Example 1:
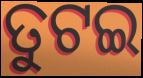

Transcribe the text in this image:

ତୁଟଇ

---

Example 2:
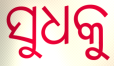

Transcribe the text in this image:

ସୁଧକୁ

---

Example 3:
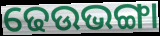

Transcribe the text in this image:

ଢେଉଭଙ୍ଗା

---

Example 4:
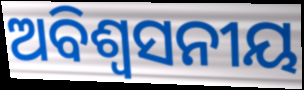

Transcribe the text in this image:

ଅବିଶ୍ବସନୀୟ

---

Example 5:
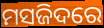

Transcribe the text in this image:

ମସଜିଦରେ